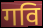
गवि